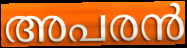
അപരൻ